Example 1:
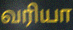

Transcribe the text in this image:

வரியா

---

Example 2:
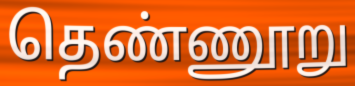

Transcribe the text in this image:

தெண்ணூறு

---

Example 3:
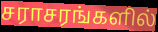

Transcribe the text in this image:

சராசரங்களில்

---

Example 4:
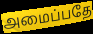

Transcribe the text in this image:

அமைப்பதே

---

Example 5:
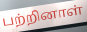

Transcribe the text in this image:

பற்றினாள்